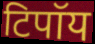
टिपॉय